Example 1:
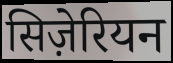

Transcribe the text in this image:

सिज़ेरियन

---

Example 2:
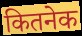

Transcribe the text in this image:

कितनेक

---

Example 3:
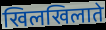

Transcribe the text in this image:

खिलखिलाते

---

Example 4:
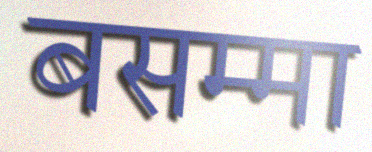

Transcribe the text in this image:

बसम्मा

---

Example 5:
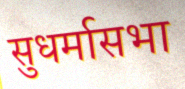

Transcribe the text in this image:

सुधर्मासभा